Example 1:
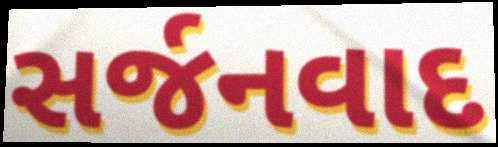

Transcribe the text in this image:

સર્જનવાદ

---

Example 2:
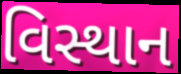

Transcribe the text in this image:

વિસ્થાન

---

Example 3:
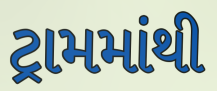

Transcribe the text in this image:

ટ્રામમાંથી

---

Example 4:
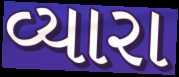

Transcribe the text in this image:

વ્યારા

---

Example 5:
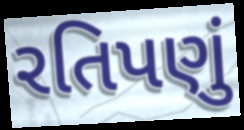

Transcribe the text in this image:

રતિપણું